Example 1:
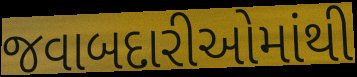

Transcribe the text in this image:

જવાબદારીઓમાંથી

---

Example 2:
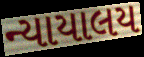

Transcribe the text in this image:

ન્યાયાલય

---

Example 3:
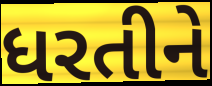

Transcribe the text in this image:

ધરતીને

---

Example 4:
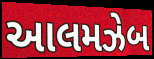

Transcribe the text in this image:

આલમઝેબ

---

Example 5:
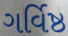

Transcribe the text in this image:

ગર્વિષ્ઠ